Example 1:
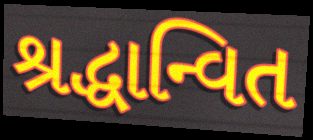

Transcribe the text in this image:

શ્રદ્ધાન્વિત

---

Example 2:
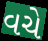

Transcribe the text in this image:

વચે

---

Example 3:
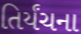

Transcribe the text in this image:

તિર્યંચના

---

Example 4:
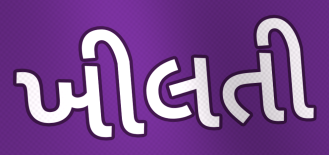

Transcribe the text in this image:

ખીલતી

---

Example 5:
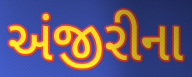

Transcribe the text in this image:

અંજીરીના